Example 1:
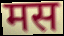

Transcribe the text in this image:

मस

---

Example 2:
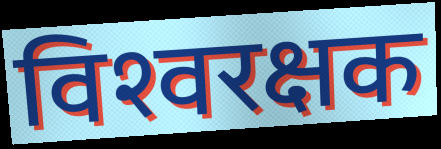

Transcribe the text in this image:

विश्वरक्षक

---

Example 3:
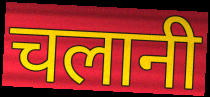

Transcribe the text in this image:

चलानी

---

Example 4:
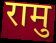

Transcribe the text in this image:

रामु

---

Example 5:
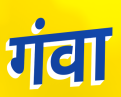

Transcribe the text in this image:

गंवा